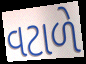
વટાળે